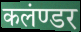
कलंण्डर